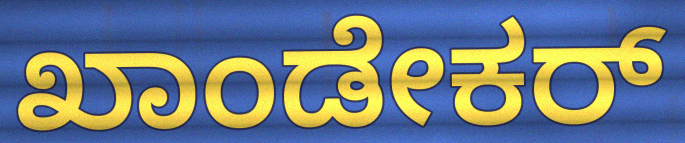
ಖಾಂಡೇಕರ್